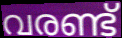
വരണ്ട്